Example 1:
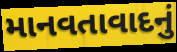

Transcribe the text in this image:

માનવતાવાદનું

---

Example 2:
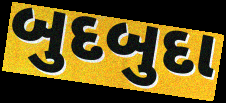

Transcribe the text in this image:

બુદબુદા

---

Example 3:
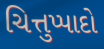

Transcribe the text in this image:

ચિત્તુપ્પાદો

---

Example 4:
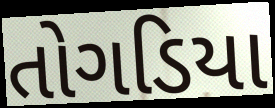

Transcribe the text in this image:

તોગડિયા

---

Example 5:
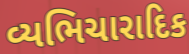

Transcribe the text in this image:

વ્યભિચારાદિક